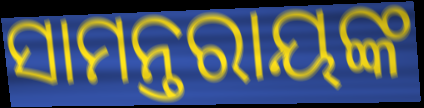
ସାମନ୍ତରାୟଙ୍କ